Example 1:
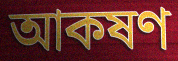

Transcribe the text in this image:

আকষণ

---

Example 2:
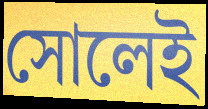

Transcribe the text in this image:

সোলেই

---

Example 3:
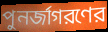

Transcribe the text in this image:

পুনর্জাগরণের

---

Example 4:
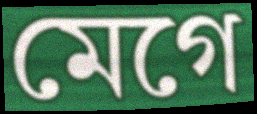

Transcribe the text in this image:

মেগে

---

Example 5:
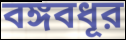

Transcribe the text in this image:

বঙ্গবধূর